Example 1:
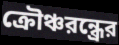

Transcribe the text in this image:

ক্রৌঞ্চরন্ধ্রের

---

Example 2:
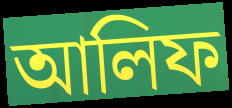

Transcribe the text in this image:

আলিফ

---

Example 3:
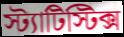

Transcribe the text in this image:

স্ট্যাটিস্টিক্স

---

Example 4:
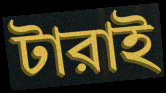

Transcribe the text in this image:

টারাই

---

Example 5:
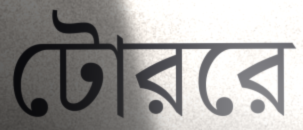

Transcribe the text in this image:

টোররে